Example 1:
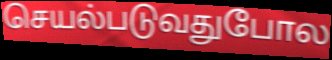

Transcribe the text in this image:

செயல்படுவதுபோல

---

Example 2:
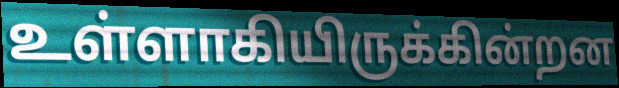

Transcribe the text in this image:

உள்ளாகியிருக்கின்றன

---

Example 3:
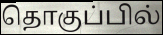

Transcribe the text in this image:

தொகுப்பில்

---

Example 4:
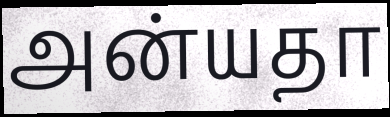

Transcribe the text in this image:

அன்யதா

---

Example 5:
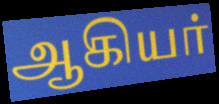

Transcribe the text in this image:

ஆகியர்